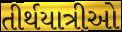
તીર્થયાત્રીઓ